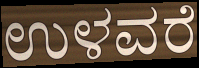
ಉಳವರೆ